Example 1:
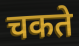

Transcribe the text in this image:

चकते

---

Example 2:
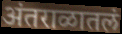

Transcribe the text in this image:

अंतराळातलं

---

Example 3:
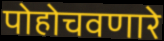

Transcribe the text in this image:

पोहोचवणारे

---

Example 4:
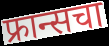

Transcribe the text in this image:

फ्रान्सचा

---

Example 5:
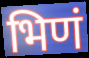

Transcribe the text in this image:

भिणं